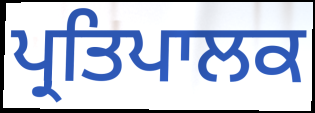
ਪ੍ਰਤਿਪਾਲਕ